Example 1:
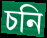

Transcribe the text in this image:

চনি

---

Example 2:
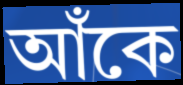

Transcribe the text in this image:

আঁকে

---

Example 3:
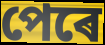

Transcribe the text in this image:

পেৰে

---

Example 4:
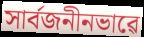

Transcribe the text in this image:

সাৰ্বজনীনভাৱে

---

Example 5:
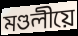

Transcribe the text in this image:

মণ্ডলীয়ে